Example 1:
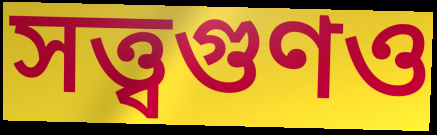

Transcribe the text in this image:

সত্ত্বগুণও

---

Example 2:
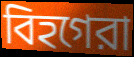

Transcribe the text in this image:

বিহগেরা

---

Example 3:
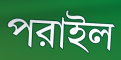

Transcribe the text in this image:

পরাইল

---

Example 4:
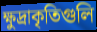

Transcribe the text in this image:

ক্ষুদ্রাকৃতিগুলি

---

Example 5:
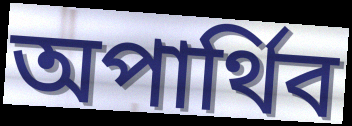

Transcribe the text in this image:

অপার্থিব